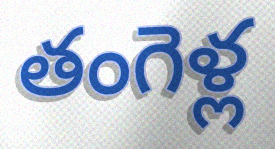
తంగెళ్ల